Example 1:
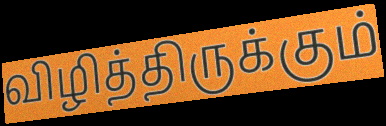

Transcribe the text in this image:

விழித்திருக்கும்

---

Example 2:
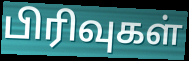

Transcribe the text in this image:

பிரிவுகள்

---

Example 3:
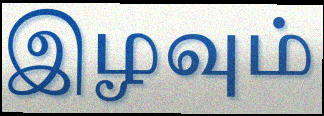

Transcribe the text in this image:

இழவும்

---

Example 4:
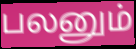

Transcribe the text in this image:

பலனும்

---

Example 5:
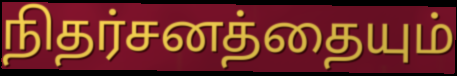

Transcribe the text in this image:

நிதர்சனத்தையும்